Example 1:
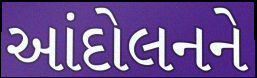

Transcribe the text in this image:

આંદોલનને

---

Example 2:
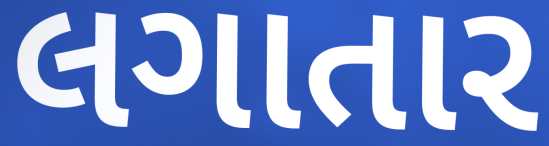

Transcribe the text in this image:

લગાતાર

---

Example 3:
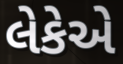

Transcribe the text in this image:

લેકેએ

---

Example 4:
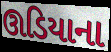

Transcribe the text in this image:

ઊડિયાના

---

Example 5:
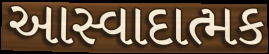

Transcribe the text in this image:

આસ્વાદાત્મક